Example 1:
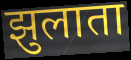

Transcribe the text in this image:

झुलाता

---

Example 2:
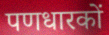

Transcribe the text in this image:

पणधारकों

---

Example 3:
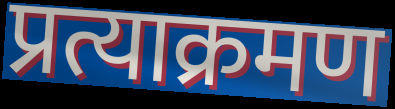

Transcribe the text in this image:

प्रत्याक्रमण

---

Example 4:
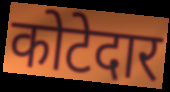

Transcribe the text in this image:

कोटेदार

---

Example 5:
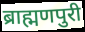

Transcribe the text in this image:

ब्राह्मणपुरी